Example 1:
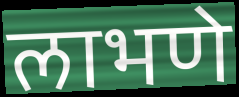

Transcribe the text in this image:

लाभणे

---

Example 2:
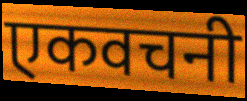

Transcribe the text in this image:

एकवचनी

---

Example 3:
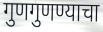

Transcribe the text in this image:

गुणगुणण्याचा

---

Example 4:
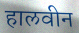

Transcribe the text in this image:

हालवीन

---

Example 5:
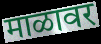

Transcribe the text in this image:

माळावर